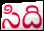
సిది